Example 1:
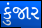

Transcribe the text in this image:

કુંજાર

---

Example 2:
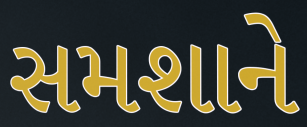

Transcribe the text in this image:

સમશાને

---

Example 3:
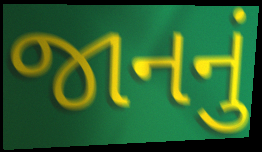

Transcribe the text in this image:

જાનનું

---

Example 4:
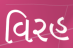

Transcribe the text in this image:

વિરહ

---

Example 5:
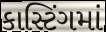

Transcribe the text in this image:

કાસ્ટિંગમાં